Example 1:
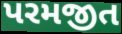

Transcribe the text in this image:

પરમજીત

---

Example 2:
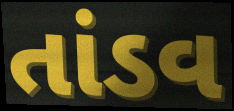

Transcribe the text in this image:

તાંડવ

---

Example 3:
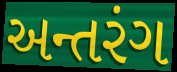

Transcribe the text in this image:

અન્તરંગ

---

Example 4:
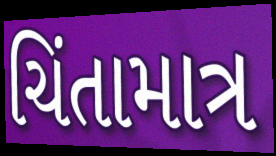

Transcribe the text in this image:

ચિંતામાત્ર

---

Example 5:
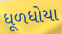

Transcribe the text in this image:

ધૂળધોયા